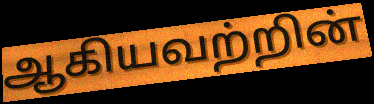
ஆகியவற்றின்